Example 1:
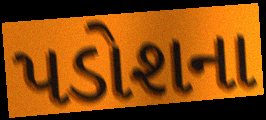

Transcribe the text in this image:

પડોશના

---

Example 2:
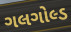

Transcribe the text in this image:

ગલગોલ્ડ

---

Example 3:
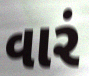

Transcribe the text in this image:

વારં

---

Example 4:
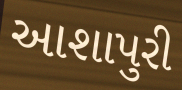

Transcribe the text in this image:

આશાપુરી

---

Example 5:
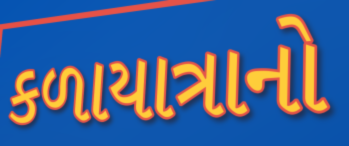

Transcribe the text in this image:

કળાયાત્રાનો